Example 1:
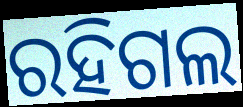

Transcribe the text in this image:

ରହିଗଲ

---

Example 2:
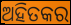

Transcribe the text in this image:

ଅହିତକର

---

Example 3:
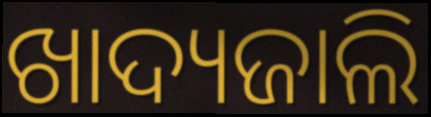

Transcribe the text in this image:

ଖାଦ୍ୟଜାଲି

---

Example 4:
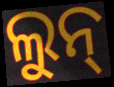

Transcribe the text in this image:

ଲୁନ୍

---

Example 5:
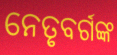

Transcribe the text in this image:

ନେତୃବର୍ଗଙ୍କ